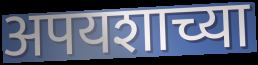
अपयशाच्या